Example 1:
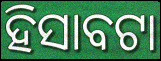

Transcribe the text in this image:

ହିସାବଟା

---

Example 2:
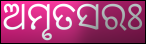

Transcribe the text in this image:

ଅମୃତସରଃ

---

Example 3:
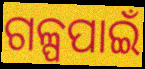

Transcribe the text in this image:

ଗଳ୍ପପାଇଁ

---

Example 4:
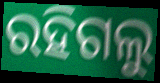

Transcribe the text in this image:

ରହିଗଲୁ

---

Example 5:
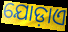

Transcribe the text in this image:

ଯୋଡ଼ାଏ